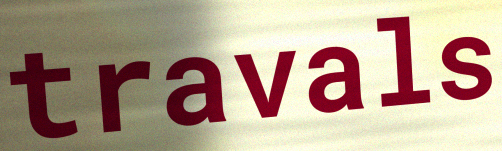
travals